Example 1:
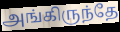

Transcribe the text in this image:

அங்கிருந்தே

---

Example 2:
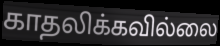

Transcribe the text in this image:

காதலிக்கவில்லை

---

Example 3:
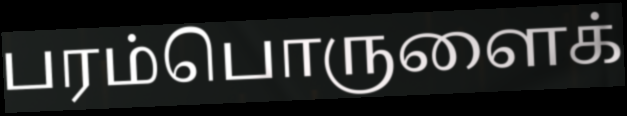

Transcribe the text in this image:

பரம்பொருளைக்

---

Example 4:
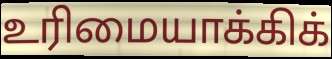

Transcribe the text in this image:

உரிமையாக்கிக்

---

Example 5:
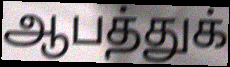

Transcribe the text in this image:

ஆபத்துக்